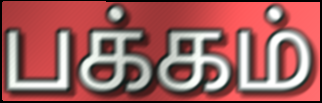
பக்கம்